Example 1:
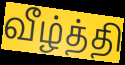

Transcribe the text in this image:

வீழ்த்தி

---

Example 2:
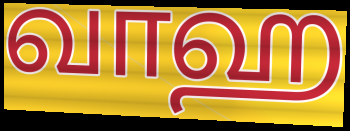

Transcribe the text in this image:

வாஹ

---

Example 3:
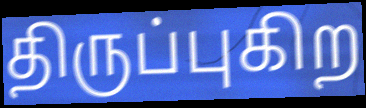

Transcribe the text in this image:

திருப்புகிற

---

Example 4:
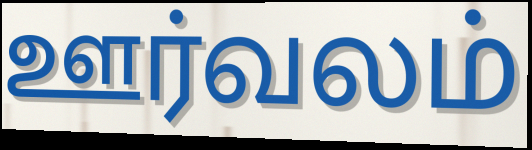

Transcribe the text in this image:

ஊர்வலம்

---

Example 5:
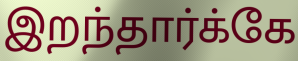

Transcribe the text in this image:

இறந்தார்க்கே